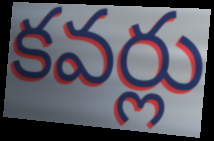
కవర్లు